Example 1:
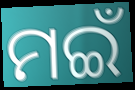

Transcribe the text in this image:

ମଇଁ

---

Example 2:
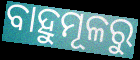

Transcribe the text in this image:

ବାହୁମୂଳରୁ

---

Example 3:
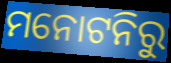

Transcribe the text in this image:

ମନୋଟନିରୁ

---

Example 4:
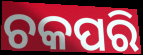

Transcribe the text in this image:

ଚକପରି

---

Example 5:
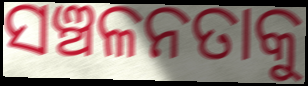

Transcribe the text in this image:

ସଞ୍ଚଳନତାକୁ